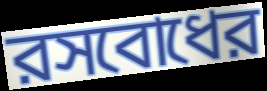
রসবোধের